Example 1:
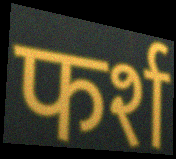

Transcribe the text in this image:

फर्श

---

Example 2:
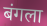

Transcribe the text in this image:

बंगला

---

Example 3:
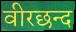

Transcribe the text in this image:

वीरछन्द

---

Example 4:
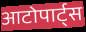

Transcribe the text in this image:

आटोपार्ट्स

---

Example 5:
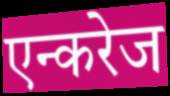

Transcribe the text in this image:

एन्करेज